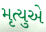
મૃત્યુએ